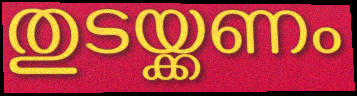
തുടയ്ക്കണം